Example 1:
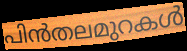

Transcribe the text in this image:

പിൻതലമുറകൾ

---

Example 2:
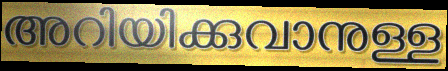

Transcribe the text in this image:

അറിയിക്കുവാനുള്ള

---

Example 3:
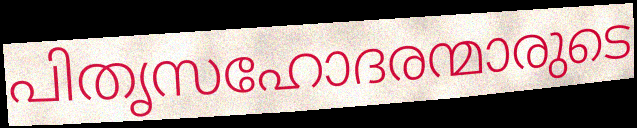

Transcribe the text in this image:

പിതൃസഹോദരന്മാരുടെ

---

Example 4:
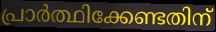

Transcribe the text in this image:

പ്രാർത്ഥിക്കേണ്ടതിന്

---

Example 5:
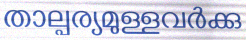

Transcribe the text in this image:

താല്പര്യമുള്ളവർക്കു